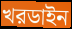
খরডাইন